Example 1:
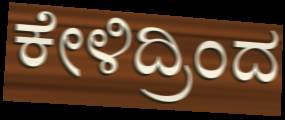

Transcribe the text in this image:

ಕೇಳಿದ್ರಿಂದ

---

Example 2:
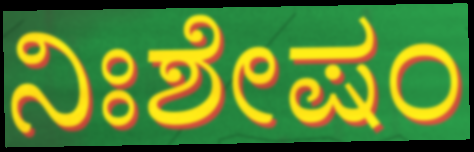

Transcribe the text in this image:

ನಿಃಶೇಷಂ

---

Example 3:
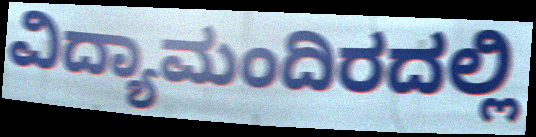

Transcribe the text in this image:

ವಿದ್ಯಾಮಂದಿರದಲ್ಲಿ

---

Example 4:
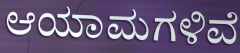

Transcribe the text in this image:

ಆಯಾಮಗಳಿವೆ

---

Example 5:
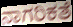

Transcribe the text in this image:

ನಾಗರಿಕತೆ